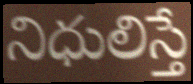
నిధులిస్తే